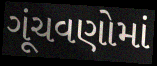
ગૂંચવણોમાં